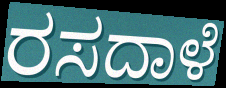
ರಸದಾಳೆ